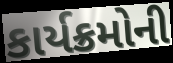
કાર્યક્રમોની